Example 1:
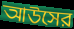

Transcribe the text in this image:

আউসের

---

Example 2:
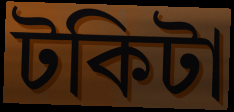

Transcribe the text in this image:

টকিটা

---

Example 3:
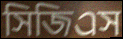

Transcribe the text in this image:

সিজিএস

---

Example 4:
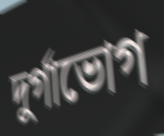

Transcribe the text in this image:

দুর্গাভোগ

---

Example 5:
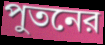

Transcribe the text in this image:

পুতনের